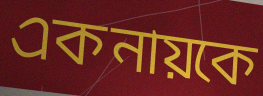
একনায়কে